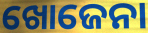
ଖୋଜେନା